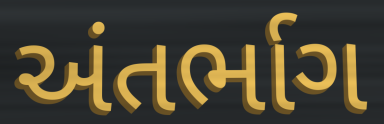
અંતર્ભાગ